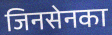
जिनसेनका